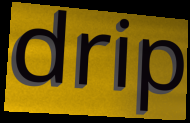
drip